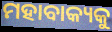
ମହାବାକ୍ୟକୁ